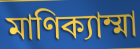
মাণিক্যাম্মা